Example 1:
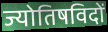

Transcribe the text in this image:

ज्योतिषविदों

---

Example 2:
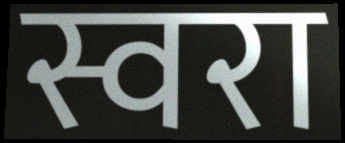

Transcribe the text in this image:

स्‍वरा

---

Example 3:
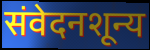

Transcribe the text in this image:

संवेदनशून्य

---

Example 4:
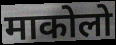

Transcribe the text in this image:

माकोलो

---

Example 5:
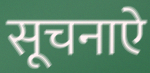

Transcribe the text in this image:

सूचनाऐ